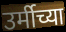
उर्मीच्या